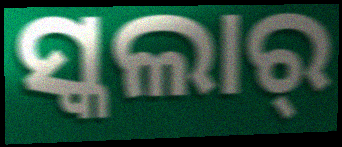
ସ୍କଲାର୍